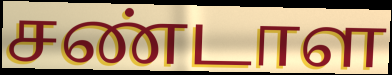
சண்டாள